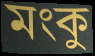
মংকু